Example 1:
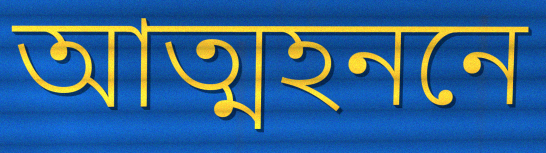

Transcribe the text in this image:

আত্মহননে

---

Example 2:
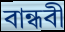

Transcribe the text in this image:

বান্ধবী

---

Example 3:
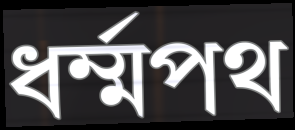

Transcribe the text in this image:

ধর্ম্মপথ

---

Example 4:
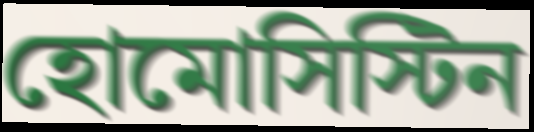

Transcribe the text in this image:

হোমোসিস্টিন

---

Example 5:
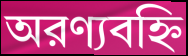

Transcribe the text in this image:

অরণ্যবহ্নি